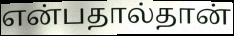
என்பதால்தான்